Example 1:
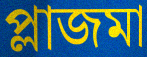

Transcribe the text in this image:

প্লাজমা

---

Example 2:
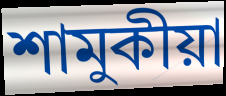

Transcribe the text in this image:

শামুকীয়া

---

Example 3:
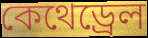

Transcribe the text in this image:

কেথেড্ৰেল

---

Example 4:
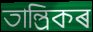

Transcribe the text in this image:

তান্ত্ৰিকৰ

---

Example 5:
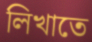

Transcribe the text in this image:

লিখাতে